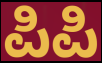
ಪಿಪಿ